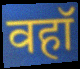
वहॉ